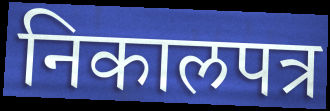
निकालपत्र